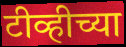
टीव्हीच्या